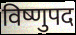
विष्‍णुपद